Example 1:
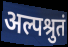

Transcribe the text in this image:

अल्पश्रुतं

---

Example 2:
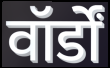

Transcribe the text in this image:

वॉर्डों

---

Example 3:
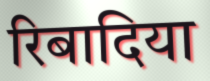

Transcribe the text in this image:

रिबादिया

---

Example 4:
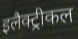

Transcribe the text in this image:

इलैक्ट्रीकल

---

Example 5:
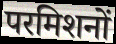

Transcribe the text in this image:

परमिशनों